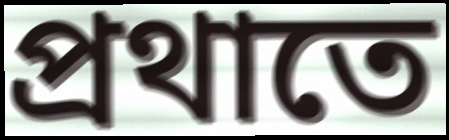
প্ৰথাতে